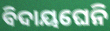
ବିଦାୟଘେନି